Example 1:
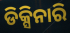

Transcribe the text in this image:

ଡିକ୍ସିନାରି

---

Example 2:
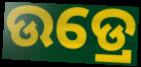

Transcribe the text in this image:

ଉଡ୍ରେ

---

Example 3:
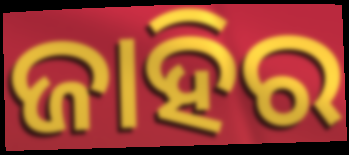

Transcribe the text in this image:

ଜାହିର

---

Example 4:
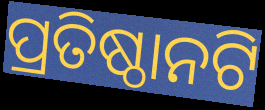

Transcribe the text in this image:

ପ୍ରତିଷ୍ଠାନଟି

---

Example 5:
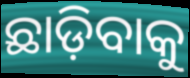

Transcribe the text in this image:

ଛାଡ଼ିବାକୁ